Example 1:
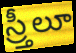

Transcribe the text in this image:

స్ర్తీలూ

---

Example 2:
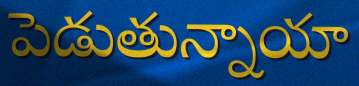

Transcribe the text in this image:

పెడుతున్నాయా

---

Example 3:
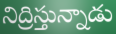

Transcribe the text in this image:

నిద్రిస్తున్నాడు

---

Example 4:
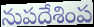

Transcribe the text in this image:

నుపదేశింప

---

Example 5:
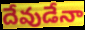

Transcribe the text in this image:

దేవుడేనా